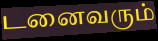
டனைவரும்